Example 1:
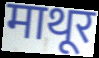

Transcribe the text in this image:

माथूर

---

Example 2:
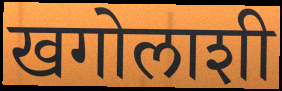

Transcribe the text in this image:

खगोलाशी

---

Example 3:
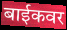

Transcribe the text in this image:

बाईकवर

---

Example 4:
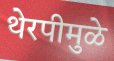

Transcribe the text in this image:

थेरपीमुळे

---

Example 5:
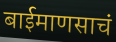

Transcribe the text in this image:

बाईमाणसाचं